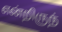
என்றிருந்